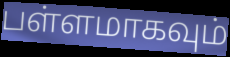
பள்ளமாகவும்